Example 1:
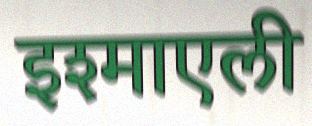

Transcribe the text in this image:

इश्माएली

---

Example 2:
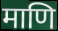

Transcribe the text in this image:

माणि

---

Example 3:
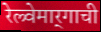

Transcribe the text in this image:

रेल्वेमार्गाची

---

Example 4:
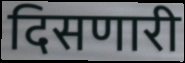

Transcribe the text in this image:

दिसणारी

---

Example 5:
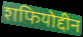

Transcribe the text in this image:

शफियोद्दीन